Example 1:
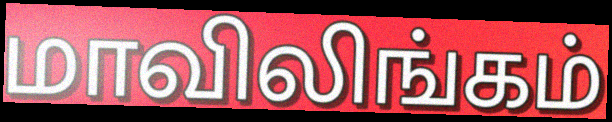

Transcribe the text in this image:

மாவிலிங்கம்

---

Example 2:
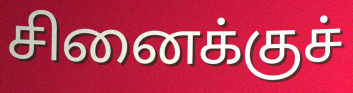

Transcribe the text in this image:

சினைக்குச்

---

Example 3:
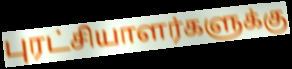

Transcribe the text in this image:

புரட்சியாளர்களுக்கு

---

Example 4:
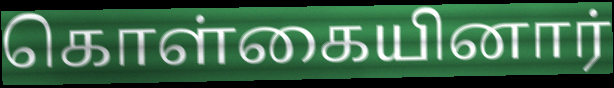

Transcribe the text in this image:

கொள்கையினார்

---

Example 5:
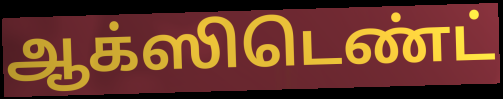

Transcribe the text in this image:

ஆக்ஸிடெண்ட்